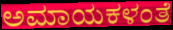
ಅಮಾಯಕಳಂತೆ